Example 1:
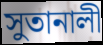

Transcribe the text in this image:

সুতানালী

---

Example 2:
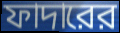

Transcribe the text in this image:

ফাদারের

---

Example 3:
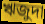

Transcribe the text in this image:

ঋজুদা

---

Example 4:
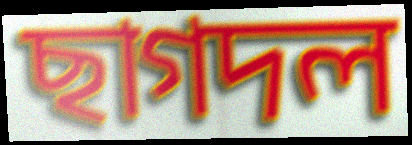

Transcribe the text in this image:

ছাগদল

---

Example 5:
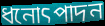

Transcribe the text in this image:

ধনোৎপাদন